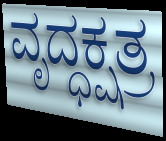
ವೃದ್ಧಕ್ಷತ್ರ